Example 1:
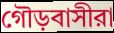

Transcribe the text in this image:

গৌড়বাসীরা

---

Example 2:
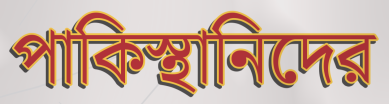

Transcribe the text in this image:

পাকিস্থানিদের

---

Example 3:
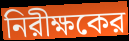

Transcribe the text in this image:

নিরীক্ষকের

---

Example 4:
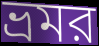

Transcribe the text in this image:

ভ্রমর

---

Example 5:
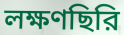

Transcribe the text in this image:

লক্ষণছিরি